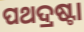
ପଥଦ୍ରଷ୍ଟା